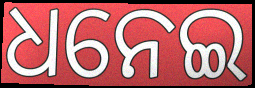
ଧନେଇ